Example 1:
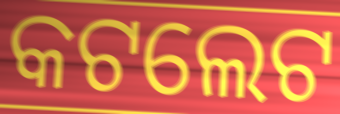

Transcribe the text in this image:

କଟଲେଟ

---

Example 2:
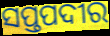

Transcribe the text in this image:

ସପ୍ତପଦୀର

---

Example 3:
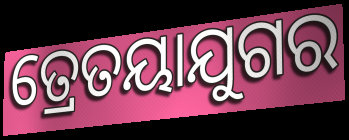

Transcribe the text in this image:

ତ୍ରେତୟାଯୁଗର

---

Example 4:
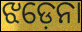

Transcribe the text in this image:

ଝଡ଼େନା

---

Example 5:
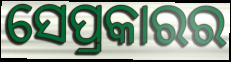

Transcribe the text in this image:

ସେପ୍ରକାରର